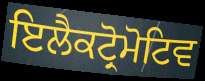
ਇਲੈਕਟ੍ਰੋਮੋਟਿਵ